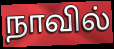
நாவில்